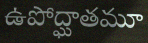
ఉపోద్ఘాతమూ